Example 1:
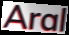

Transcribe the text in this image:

Aral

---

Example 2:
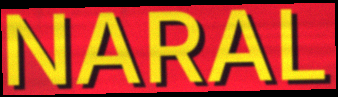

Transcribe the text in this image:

NARAL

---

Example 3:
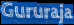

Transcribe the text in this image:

Gururaja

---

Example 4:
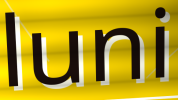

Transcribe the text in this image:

luni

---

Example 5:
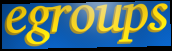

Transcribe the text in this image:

egroups